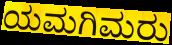
ಯಮಗಿಮರು